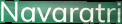
Navaratri